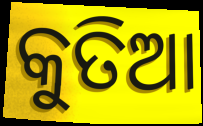
କୁତିଆ